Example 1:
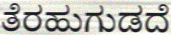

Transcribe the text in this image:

ತೆರಹುಗುಡದೆ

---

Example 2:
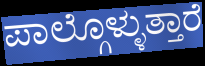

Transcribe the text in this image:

ಪಾಲ್ಗೊಳ್ಳುತ್ತಾರೆ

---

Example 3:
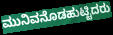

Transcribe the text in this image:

ಮುನಿವನೊಡಹುಟ್ಟಿದರು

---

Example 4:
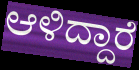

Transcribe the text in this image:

ಆಳಿದ್ದಾರೆ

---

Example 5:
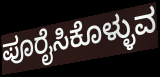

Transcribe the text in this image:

ಪೂರೈಸಿಕೊಳ್ಳುವ